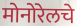
मोनोरेलचे